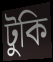
টুকি